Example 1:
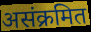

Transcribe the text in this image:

असंक्रमित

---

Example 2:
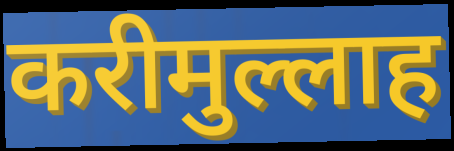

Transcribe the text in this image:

करीमुल्लाह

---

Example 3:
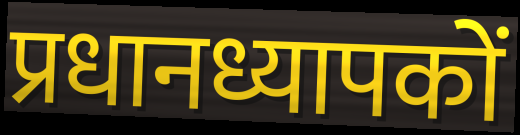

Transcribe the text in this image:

प्रधानध्यापकों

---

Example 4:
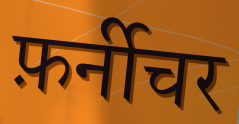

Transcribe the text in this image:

फ़र्नीचर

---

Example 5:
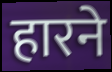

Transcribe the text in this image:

हारने